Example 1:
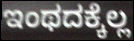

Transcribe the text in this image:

ಇಂಥದಕ್ಕೆಲ್ಲ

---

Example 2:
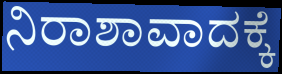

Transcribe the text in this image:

ನಿರಾಶಾವಾದಕ್ಕೆ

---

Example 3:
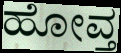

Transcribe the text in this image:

ಹೋವ್ತ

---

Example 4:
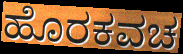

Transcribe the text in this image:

ಹೊರಕವಚ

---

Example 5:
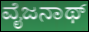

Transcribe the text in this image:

ವೈಜನಾಥ್